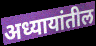
अध्यायांतील